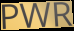
PWR